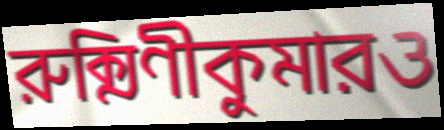
রুক্মিণীকুমারও